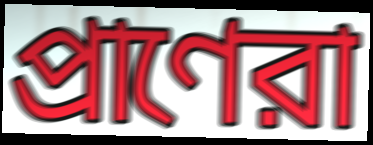
প্রাণেরা